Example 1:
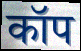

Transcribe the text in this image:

कॉप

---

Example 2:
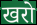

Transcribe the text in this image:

खरो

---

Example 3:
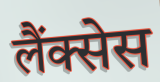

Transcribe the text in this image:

लैंक्‍सेस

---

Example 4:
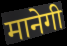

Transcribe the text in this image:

मानेगी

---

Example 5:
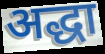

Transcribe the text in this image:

अद्धा